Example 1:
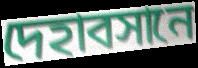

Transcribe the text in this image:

দেহাবসানে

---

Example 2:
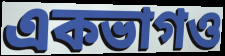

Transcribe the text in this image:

একভাগও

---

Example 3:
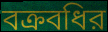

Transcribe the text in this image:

বক্রবধির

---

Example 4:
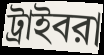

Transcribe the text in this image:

ট্রাইবরা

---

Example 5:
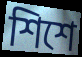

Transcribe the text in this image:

শিশে